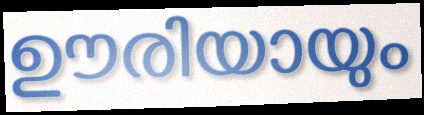
ഊരിയായും